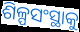
ଶିଳ୍ପସଂସ୍ଥାକୁ